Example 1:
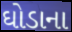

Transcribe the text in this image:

ઘોડાના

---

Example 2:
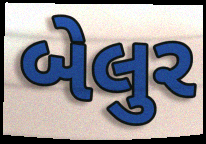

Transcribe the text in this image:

બેલુર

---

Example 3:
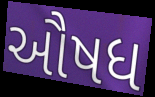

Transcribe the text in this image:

ઔષધ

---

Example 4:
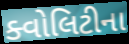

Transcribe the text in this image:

ક્વોલિટીના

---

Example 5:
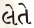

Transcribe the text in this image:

લેતે